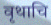
वृथाचि